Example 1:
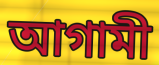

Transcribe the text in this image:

আগামী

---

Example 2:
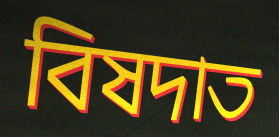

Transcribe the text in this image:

বিষদাত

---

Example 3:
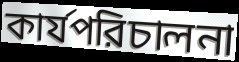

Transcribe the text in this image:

কার্যপরিচালনা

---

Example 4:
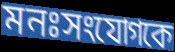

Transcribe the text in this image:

মনঃসংযোগকে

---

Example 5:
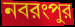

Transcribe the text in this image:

নবরংপুর